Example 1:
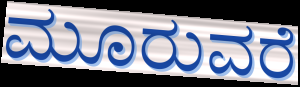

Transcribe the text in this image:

ಮೂರುವರೆ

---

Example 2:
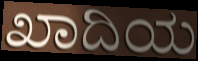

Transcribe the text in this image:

ಖಾದಿಯ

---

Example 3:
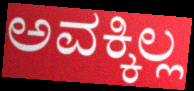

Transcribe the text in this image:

ಅವಕ್ಕಿಲ್ಲ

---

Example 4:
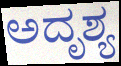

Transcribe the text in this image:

ಅದೃಶ್ಯ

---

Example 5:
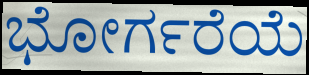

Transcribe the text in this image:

ಭೋರ್ಗರೆಯೆ